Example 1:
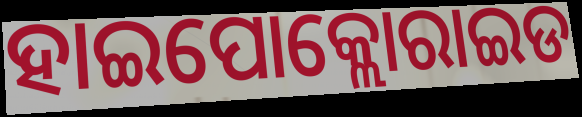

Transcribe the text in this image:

ହାଇପୋକ୍ଲୋରାଇଡ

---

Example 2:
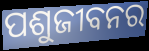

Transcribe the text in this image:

ପଶୁଜୀବନର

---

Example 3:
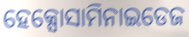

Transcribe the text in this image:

ହେକ୍ସୋସାମିନାଇଡେଜ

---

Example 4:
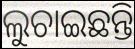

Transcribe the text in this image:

ଲୁଚାଇଛନ୍ତି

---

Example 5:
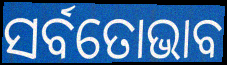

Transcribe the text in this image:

ସର୍ବତୋଭାବ